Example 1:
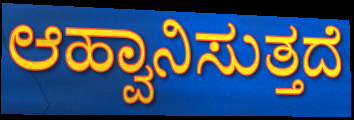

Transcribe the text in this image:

ಆಹ್ವಾನಿಸುತ್ತದೆ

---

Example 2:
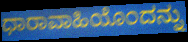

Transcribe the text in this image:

ಧಾರಾವಾಹಿಯೊಂದನ್ನು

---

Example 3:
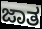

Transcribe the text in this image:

ಜಾತ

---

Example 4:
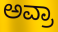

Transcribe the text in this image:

ಅವ್ರಾ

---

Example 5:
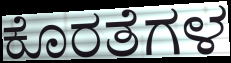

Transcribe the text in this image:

ಕೊರತೆಗಳ